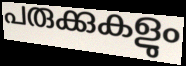
പരുക്കുകളും